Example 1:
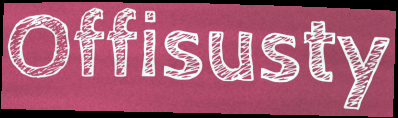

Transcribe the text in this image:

Offisusty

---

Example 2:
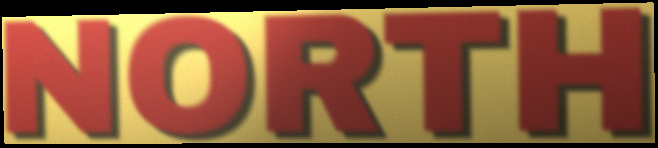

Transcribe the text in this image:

NORTH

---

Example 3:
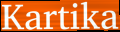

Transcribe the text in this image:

Kartika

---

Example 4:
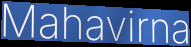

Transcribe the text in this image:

Mahavirna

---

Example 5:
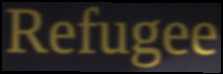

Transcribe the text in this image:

Refugee